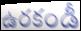
ఉరకండీ